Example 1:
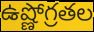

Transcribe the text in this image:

ఉష్ణోగ్రతల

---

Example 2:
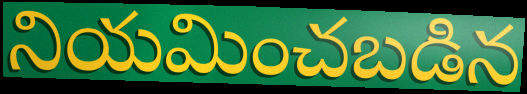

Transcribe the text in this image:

నియమించబడిన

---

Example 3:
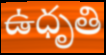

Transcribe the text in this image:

ఉధృతి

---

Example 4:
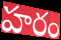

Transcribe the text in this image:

హరం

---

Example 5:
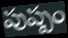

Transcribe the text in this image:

పుష్పం